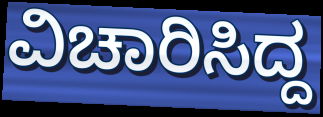
ವಿಚಾರಿಸಿದ್ದ